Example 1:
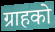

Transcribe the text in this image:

ग्राहको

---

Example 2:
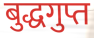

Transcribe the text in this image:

बुद्धगुप्त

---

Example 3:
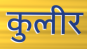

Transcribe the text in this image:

कुलीर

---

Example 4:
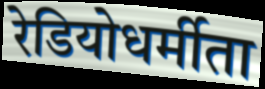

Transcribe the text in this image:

रेडियोधर्मीता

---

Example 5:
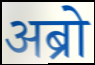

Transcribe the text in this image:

अब्रो